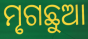
ମୃଗଛୁଆ